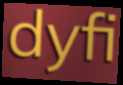
dyfi